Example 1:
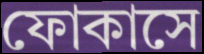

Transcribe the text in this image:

ফোকাসে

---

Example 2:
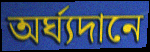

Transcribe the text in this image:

অর্ঘ্যদানে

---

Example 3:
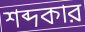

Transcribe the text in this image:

শব্দকার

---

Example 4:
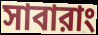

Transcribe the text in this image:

সাবারাং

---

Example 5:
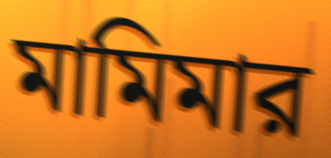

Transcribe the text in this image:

মামিমার